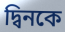
দ্বিনকে